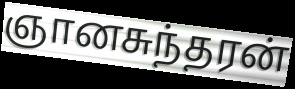
ஞானசுந்தரன்